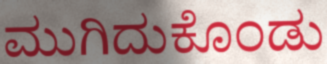
ಮುಗಿದುಕೊಂಡು